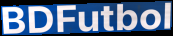
BDFutbol